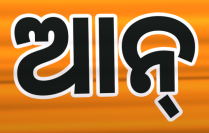
ଆନ୍